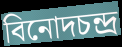
বিনোদচন্দ্র